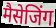
मैसेजिंग